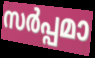
സർപ്പമാ